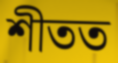
শীতত